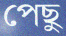
পেছু